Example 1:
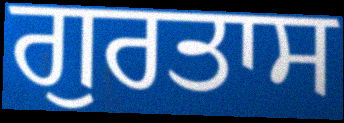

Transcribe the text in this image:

ਗੁਰਤਾਸ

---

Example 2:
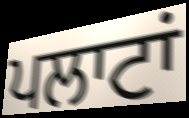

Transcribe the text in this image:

ਪਲਾਟਾਂ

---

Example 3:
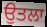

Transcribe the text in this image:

ਉਤਲਾ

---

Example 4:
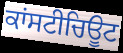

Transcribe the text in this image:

ਕਾਂਸਟੀਚਿਊਟ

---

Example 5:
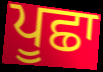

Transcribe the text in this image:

ਪੂਛਾ